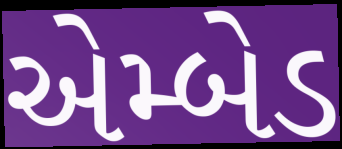
એમ્બેડ